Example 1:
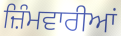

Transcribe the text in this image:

ਜ਼ਿੰਮਵਾਰੀਆਂ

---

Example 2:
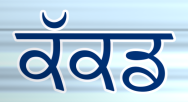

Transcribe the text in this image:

ਕੱਕਡ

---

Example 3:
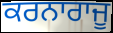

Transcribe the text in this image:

ਕਰਨਾਰਾਜੂ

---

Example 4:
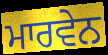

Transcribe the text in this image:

ਮਾਰਵੇਨ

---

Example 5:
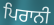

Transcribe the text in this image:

ਪਿਰਾਨੀ